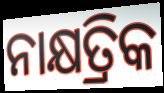
ନାକ୍ଷତ୍ରିକ